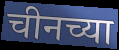
चीनच्या